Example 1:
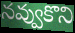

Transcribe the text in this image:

నవ్వుకొని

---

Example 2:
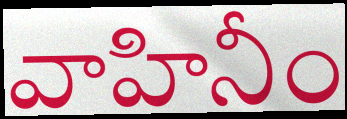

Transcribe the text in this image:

వాహినీం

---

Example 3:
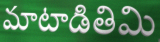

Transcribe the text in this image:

మాటాడితిమి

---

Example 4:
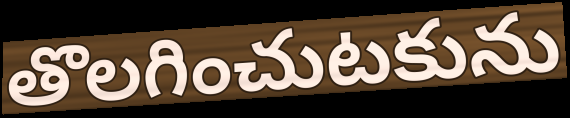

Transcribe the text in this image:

తొలగించుటకును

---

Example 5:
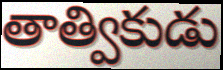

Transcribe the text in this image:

తాత్వికుడు